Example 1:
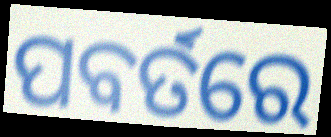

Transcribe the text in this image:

ପବର୍ତରେ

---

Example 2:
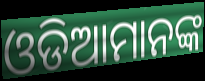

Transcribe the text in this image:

ଓଡିଆମାନଙ୍କ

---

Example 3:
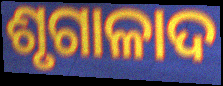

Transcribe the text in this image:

ଶୃଗାଳାଦ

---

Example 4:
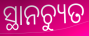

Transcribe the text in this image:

ସ୍ଥାନଚ୍ୟୁତ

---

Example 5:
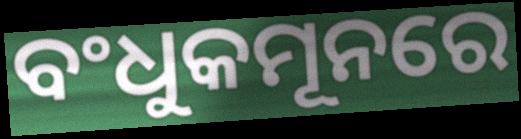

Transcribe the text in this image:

ବଂଧୁକମୂନରେ